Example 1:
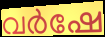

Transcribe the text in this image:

വർഷേ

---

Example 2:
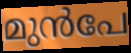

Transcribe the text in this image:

മുൻപേ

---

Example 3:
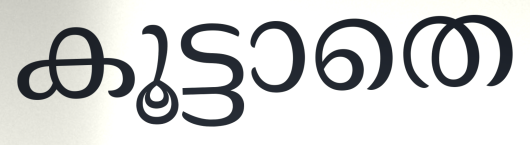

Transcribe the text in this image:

കൂട്ടാതെ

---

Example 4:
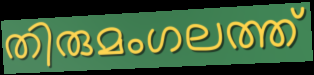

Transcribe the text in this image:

തിരുമംഗലത്ത്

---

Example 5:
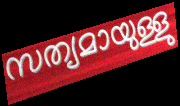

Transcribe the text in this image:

സത്യമായുള്ളു